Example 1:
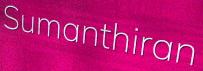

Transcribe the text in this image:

Sumanthiran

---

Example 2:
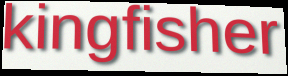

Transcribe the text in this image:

kingfisher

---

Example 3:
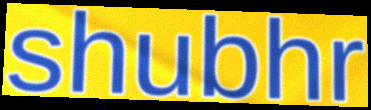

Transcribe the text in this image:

shubhr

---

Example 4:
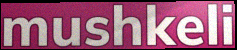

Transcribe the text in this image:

mushkeli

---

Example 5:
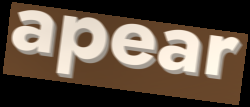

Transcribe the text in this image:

apear